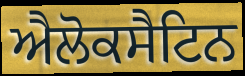
ਐਲੋਕਸੈਟਿਨ